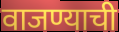
वाजण्याची